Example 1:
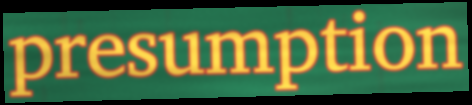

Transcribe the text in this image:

presumption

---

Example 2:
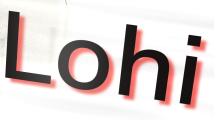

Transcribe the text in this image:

Lohi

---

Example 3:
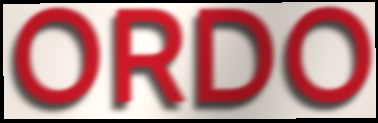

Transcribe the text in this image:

ORDO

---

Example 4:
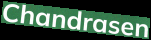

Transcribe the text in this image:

Chandrasen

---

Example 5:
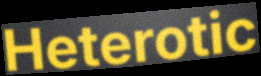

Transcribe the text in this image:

Heterotic